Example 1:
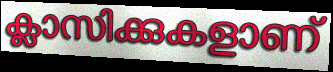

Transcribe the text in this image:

ക്ലാസിക്കുകളാണ്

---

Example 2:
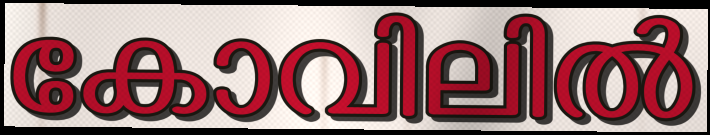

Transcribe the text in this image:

കോവിലിൽ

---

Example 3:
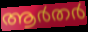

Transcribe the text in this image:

ആർതർ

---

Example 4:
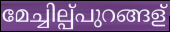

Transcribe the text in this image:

മേച്ചില്പ്പുറങ്ങള്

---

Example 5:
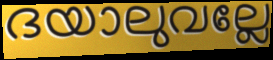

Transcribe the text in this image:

ദയാലുവല്ലേ